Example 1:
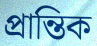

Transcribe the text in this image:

প্রান্তিক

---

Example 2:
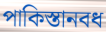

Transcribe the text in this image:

পাকিস্তানবধ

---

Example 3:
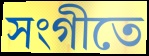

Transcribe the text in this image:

সংগীতে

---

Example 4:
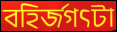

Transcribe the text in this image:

বহির্জগৎটা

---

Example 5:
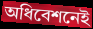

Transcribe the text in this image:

অধিবেশনেই